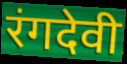
रंगदेवी